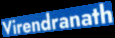
Virendranath